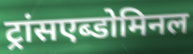
ट्रांसएब्डोमिनल